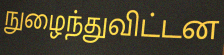
நுழைந்துவிட்டன